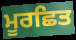
ਮੂਰਛਿਤ